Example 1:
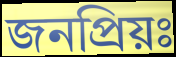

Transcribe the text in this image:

জনপ্রিয়ঃ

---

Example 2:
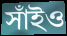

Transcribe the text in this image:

সাঁইও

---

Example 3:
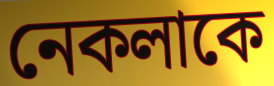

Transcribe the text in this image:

নেকলাকে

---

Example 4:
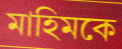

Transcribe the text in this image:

মাহিমকে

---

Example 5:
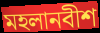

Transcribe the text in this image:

মহলানবীশ